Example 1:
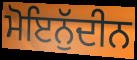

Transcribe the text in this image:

ਮੋਇਨੁੱਦੀਨ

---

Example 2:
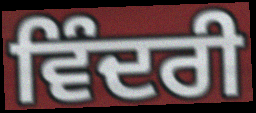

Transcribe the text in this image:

ਵਿੰਦਰੀ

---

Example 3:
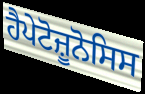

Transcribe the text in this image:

ਹੈਪੇਟੋਜ਼ੂਨੋਸਿਸ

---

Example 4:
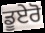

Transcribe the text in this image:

ਡੂਏਰੋ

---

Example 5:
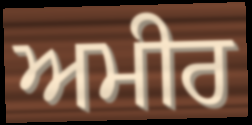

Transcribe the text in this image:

ਅਮੀਰ